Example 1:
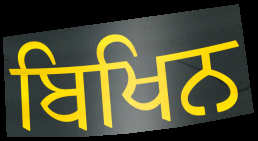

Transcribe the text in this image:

ਬਿਖਿਨ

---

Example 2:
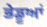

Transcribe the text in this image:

ਭੇਡੂਆਂ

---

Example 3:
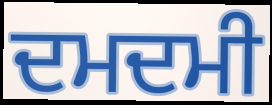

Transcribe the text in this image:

ਦਮਦਮੀ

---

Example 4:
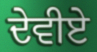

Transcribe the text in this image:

ਦੇਵੀਏ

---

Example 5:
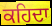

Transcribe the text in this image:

ਕਹਿਦਾ